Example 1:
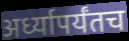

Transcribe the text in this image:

अर्ध्यापर्यंतच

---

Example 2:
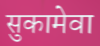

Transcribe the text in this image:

सुकामेवा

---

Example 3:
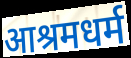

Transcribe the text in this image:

आश्रमधर्म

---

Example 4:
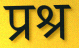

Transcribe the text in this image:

प्रश्र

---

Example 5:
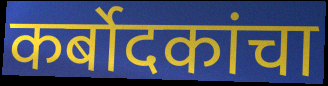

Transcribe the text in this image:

कर्बोदकांचा